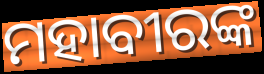
ମହାବୀରଙ୍କ